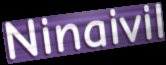
Ninaivil